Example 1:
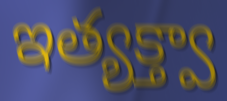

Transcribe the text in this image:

ఇత్యక్త్వా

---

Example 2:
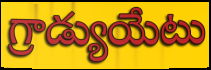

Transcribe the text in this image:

గ్రాడ్యుయేటు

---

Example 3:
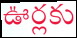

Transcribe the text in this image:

ఊర్లకు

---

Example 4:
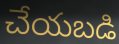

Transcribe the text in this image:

చేయబడి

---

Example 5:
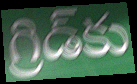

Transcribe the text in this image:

గ్రిడ్‌కు